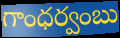
గాంధర్వంబు